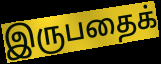
இருபதைக்